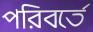
পরিবর্তে